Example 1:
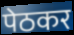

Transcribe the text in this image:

पेठकर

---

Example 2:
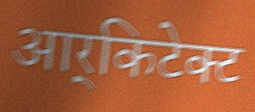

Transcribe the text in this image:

आर्किटेक्ट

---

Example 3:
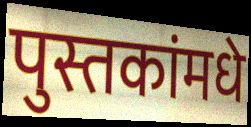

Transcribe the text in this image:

पुस्तकांमधे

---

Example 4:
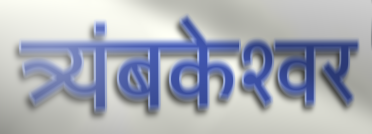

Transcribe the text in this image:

त्र्यंबकेश्वर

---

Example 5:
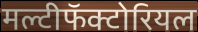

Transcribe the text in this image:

मल्टीफॅक्टोरियल